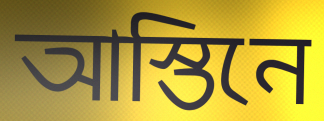
আস্তিনে